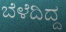
ಬೆಳೆದಿದ್ದ